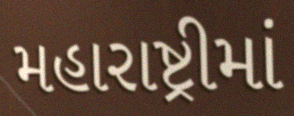
મહારાષ્ટ્રીમાં